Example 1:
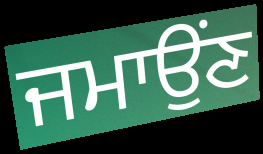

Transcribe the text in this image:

ਜਮਾਉਂਣ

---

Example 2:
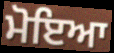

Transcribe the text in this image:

ਮੋਇਆ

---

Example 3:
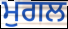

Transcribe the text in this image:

ਮੁਗਲ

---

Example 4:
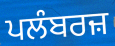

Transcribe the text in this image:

ਪਲੰਬਰਜ਼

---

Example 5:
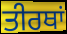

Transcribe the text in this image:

ਤੀਰਥਾਂ